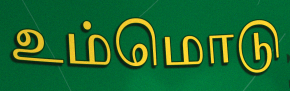
உம்மொடு